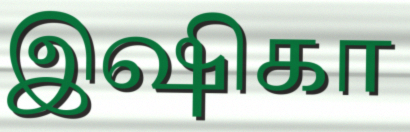
இஷிகா